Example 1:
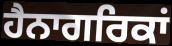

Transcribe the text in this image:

ਹੈਨਾਗਰਿਕਾਂ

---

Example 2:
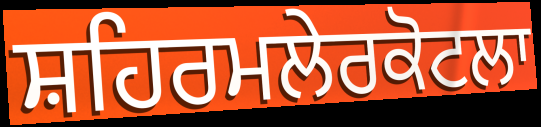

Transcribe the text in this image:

ਸ਼ਹਿਰਮਲੇਰਕੋਟਲਾ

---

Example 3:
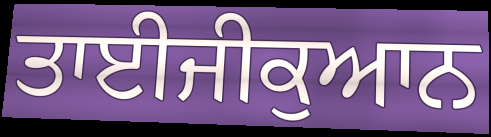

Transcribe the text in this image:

ਤਾਈਜੀਕੁਆਨ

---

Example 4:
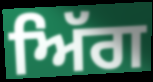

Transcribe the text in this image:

ਅਿੱਗ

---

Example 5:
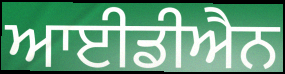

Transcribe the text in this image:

ਆਈਡੀਐਨ